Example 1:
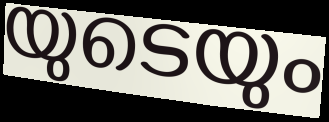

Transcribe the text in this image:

യുടെയും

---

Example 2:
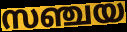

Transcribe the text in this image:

സഞ്ചയ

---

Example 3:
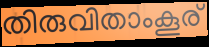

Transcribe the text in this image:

തിരുവിതാംകൂര്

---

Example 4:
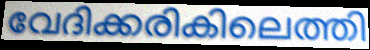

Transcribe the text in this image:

വേദിക്കരികിലെത്തി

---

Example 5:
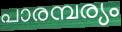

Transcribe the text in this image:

പാരമ്പര്യം